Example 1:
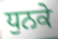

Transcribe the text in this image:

ਧੁਨਕੇ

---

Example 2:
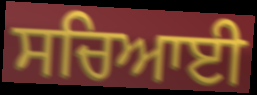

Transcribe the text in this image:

ਸਚਿਆਈ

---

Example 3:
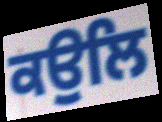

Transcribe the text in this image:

ਕਉਲਿ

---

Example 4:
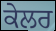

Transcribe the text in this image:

ਕੇਲਰ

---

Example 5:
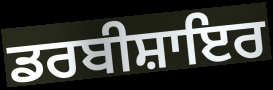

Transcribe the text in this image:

ਡਰਬੀਸ਼ਾਇਰ